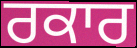
ਰਕਾਰ